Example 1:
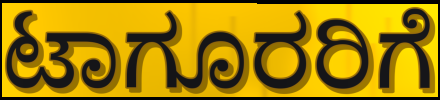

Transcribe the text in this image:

ಟಾಗೂರರಿಗೆ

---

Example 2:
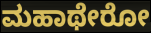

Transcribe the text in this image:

ಮಹಾಥೇರೋ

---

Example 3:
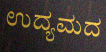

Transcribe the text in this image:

ಉದ್ಯಮದ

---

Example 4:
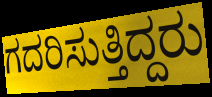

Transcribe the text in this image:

ಗದರಿಸುತ್ತಿದ್ದರು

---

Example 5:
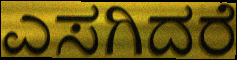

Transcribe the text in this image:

ಎಸಗಿದರೆ